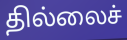
தில்லைச்